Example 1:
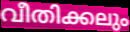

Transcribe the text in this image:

വീതിക്കലും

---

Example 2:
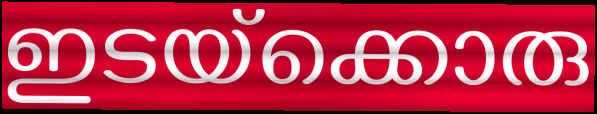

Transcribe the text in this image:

ഇടയ്‌ക്കൊരു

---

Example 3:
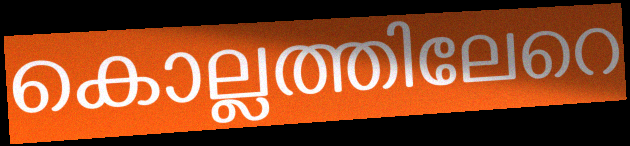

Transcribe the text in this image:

കൊല്ലത്തിലേറെ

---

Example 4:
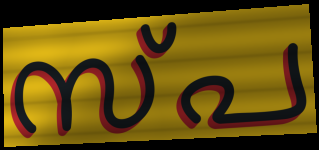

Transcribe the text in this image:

സ്പ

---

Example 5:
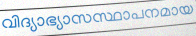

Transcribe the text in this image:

വിദ്യാഭ്യാസസ്ഥാപനമായ